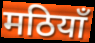
मठियाँ